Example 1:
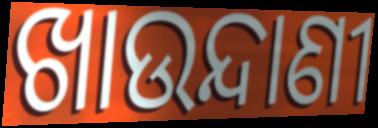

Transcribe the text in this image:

ଖାଉନ୍ଦାଣୀ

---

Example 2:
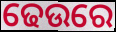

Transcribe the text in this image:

ଢେଉରେ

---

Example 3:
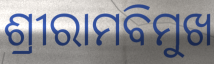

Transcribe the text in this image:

ଶ୍ରୀରାମବିମୁଖ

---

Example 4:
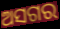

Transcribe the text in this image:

ଅସଗର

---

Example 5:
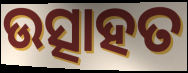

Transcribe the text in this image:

ଉତ୍ସାହତ